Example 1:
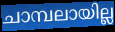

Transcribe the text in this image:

ചാമ്പലായില്ല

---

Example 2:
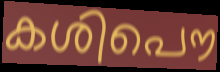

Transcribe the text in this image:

കശിപൌ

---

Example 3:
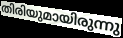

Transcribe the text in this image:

തിരിയുമായിരുന്നു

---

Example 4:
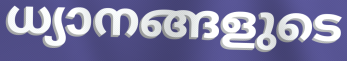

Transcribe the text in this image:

ധ്യാനങ്ങളുടെ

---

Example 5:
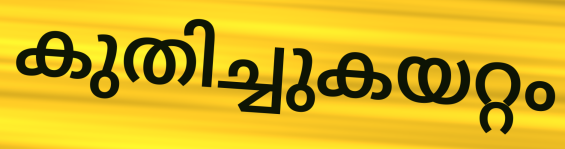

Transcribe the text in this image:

കുതിച്ചുകയറ്റം